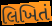
લિખિતં